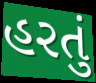
હરતું